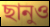
ছানুও